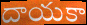
దాయకా